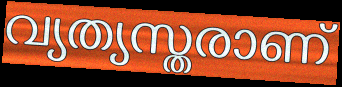
വ്യത്യസ്തരാണ്